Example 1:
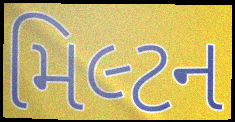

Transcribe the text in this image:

મિલ્ટન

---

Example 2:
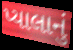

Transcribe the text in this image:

પ્યાલાનું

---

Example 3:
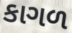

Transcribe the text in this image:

કાગળ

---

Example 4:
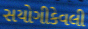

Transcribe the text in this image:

સયોગીકેવલી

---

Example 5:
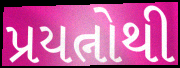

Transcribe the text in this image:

પ્રયત્નોથી